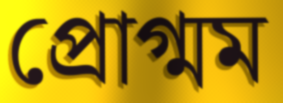
প্রোগ্মম